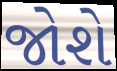
જોશે